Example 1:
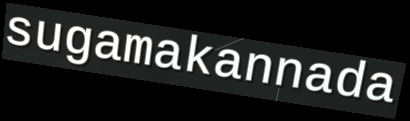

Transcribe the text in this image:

sugamakannada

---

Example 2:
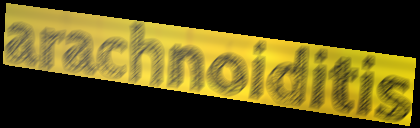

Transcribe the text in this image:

arachnoiditis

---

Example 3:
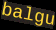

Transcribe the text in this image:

balgu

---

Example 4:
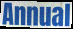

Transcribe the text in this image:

Annual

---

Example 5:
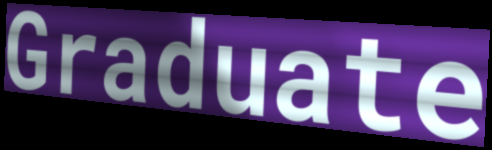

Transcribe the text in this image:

Graduate